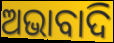
ଅଭାବାଦି